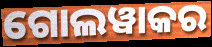
ଗୋଲୱାକର